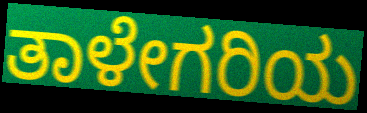
ತಾಳೇಗರಿಯ